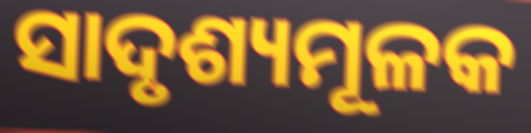
ସାଦୃଶ୍ୟମୂଳକ